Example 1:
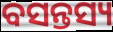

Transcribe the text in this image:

ବସନ୍ତସ୍ୟ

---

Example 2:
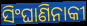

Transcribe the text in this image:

ସିଂଘାଣିନାକୀ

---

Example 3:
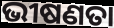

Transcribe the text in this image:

ଭୀଷଣତା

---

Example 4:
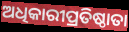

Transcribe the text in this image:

ଅଧିକାରୀପ୍ରତିଷ୍ଠାତା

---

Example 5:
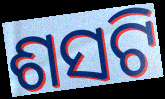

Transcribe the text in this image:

ଶସଟି